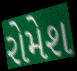
રોમેશ